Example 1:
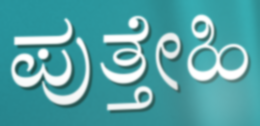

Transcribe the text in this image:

ಪುತ್ತೇಹಿ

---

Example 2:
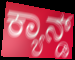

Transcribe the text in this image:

ಕ್ಯಾನ್ಡ್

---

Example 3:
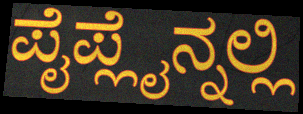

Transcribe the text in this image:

ಪೈಪ್ಲೈನ್ನಲ್ಲಿ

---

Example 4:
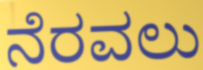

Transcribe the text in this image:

ನೆರವಲು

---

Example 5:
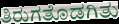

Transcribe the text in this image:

ತಿರುಗತೊಡಗಿತು